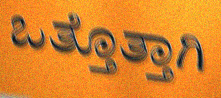
ಒತ್ತೊತ್ತಾಗಿ